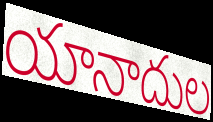
యానాదుల